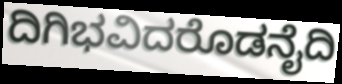
ದಿಗಿಭವಿದರೊಡನೈದಿ